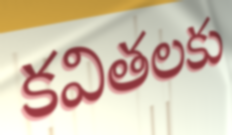
కవితలకు